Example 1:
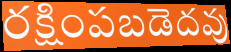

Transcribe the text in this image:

రక్షింపబడెదవు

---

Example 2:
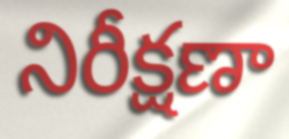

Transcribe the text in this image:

నిరీక్షణా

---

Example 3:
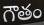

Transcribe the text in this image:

గౌతం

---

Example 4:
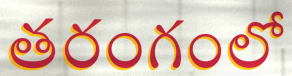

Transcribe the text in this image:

తరంగంలో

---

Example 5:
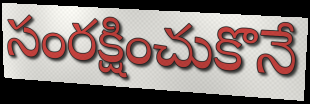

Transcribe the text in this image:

సంరక్షించుకొనే